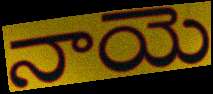
నాయె